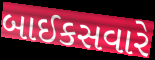
બાઈકસવારે